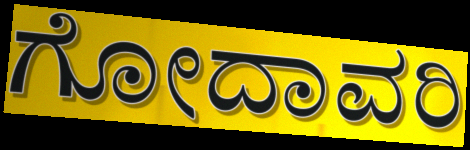
ಗೋದಾವರಿ